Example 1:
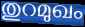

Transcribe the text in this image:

തുറമുഖം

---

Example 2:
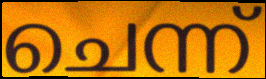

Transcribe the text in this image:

ചെന്ന്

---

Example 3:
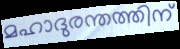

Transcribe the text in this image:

മഹാദുരന്തത്തിന്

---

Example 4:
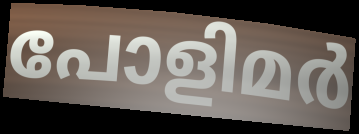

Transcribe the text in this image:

പോളിമർ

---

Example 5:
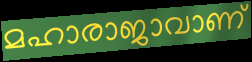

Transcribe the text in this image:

മഹാരാജാവാണ്